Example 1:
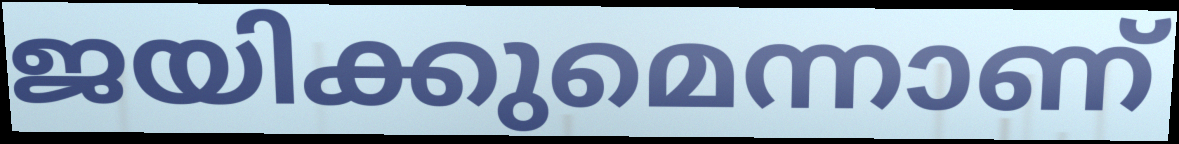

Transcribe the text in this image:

ജയിക്കുമെന്നാണ്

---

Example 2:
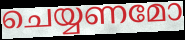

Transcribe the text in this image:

ചെയ്യണമോ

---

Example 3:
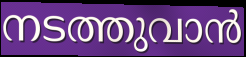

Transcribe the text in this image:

നടത്തുവാൻ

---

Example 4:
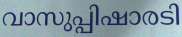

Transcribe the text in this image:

വാസുപ്പിഷാരടി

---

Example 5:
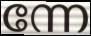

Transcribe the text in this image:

ന്നേ